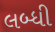
લબ્ધી